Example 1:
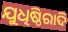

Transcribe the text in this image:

ଯୁଧିଷ୍ଠିରାଦି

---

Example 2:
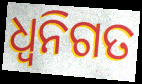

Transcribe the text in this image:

ଧ୍ଵନିଗତ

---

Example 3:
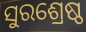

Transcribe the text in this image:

ସୁରଶ୍ରେଷ୍ଠ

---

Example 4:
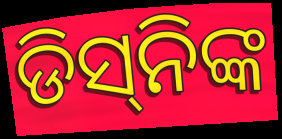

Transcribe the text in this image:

ଡିସ୍‌ନିଙ୍କ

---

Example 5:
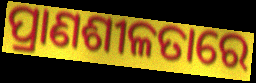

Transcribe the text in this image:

ପ୍ରାଣଶୀଳତାରେ